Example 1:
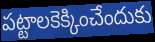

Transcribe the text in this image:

పట్టాలకెక్కించేందుకు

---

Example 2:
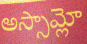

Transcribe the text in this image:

అస్సామ్లో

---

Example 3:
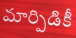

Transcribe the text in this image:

మార్పిడికీ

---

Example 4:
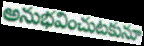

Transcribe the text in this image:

అనుభవించుటకునూ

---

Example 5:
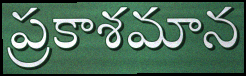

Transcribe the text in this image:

ప్రకాశమాన